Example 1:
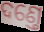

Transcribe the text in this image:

ଦଣ୍ତେ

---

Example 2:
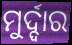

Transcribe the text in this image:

ମୁର୍ଦ୍ଦାର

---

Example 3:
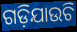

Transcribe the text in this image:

ଗଡ଼ିଯାଉଚି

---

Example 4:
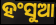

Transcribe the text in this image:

ହଂସୁଆ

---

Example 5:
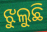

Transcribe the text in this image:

ଝୁଲୁଛି